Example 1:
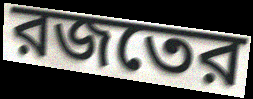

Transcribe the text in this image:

রজতের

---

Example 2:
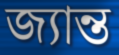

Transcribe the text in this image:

জ্যান্ত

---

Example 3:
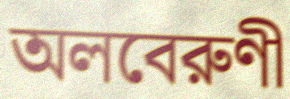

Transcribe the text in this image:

অলবেরুণী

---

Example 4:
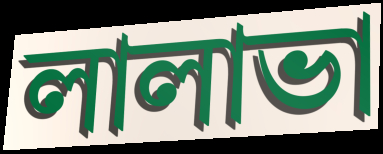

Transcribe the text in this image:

লালাভা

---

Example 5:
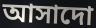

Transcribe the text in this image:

আসাদো